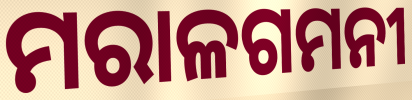
ମରାଳଗମନୀ